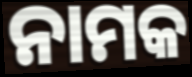
ନାମକ